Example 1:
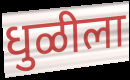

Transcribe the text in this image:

धुळीला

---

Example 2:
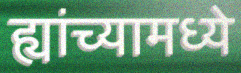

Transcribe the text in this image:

ह्यांच्यामध्ये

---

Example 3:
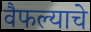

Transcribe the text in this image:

वैफल्याचे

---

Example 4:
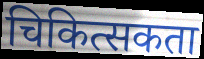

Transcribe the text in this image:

चिकित्सकता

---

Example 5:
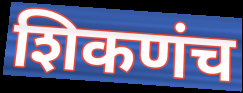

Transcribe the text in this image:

शिकणंच